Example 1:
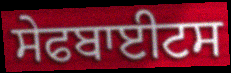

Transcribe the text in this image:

ਸੇਫਬਾਈਟਸ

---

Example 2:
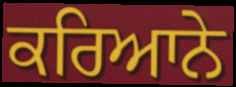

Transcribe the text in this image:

ਕਰਿਆਨੇ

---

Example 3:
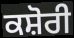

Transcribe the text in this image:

ਕਸ਼ੋਰੀ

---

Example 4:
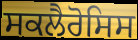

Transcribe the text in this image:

ਸਕਲੈਰੋਸਿਸ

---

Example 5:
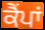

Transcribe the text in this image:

ਕੈੰਪਾਂ